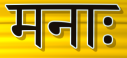
मनाः